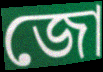
জো